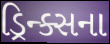
ડ્રિન્ક્સના